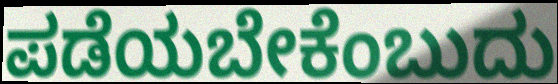
ಪಡೆಯಬೇಕೆಂಬುದು